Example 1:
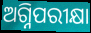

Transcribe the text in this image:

ଅଗ୍ନିପରୀକ୍ଷା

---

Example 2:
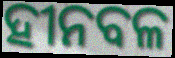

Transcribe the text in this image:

ହୀନବଳ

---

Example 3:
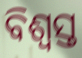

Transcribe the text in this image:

ବିଶ୍ବସ୍ତ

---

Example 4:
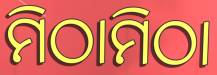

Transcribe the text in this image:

ମିଠାମିଠା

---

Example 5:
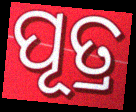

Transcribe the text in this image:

ପୂତ୍ର